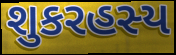
શુકરહસ્ય